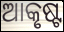
ଆକୃଷ୍ଟ